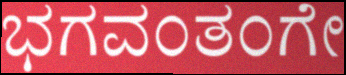
ಭಗವಂತಂಗೇ